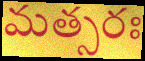
మత్సరః